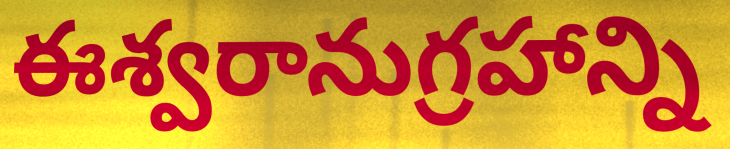
ఈశ్వరానుగ్రహాన్ని